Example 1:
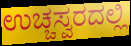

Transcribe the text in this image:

ಉಚ್ಚಸ್ವರದಲ್ಲಿ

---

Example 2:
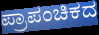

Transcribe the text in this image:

ಪ್ರಾಪಂಚಿಕದ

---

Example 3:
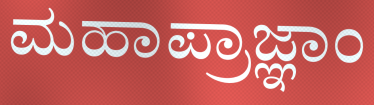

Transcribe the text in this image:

ಮಹಾಪ್ರಾಜ್ಞಾಂ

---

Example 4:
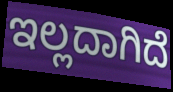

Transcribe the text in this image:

ಇಲ್ಲದಾಗಿದೆ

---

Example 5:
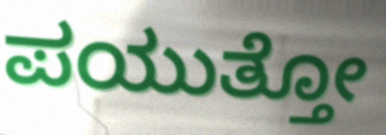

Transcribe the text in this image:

ಪಯುತ್ತೋ